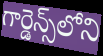
గార్డెన్స్‌లోని